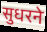
सुधरने